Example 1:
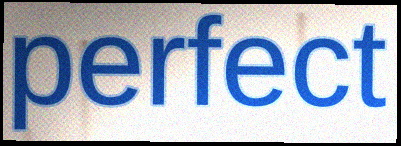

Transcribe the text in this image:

perfect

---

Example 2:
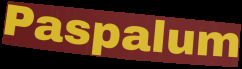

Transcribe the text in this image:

Paspalum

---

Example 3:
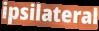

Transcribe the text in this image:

ipsilateral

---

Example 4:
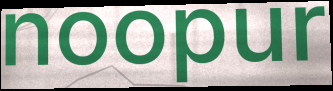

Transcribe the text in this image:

noopur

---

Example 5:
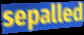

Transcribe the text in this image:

sepalled